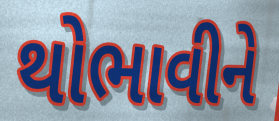
થોભાવીને